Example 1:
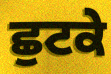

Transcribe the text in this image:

ਛੁਟਕੇ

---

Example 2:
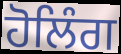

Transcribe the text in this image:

ਹੋਲਿੰਗ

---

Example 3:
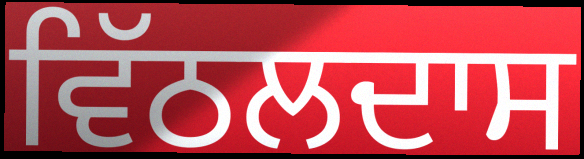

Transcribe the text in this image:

ਵਿੱਠਲਦਾਸ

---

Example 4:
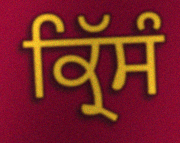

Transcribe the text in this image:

ਕ੍ਰਿੱਸੰ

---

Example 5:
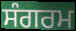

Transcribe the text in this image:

ਸੰਗਰਮ